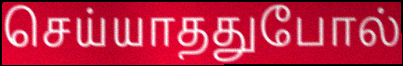
செய்யாததுபோல்